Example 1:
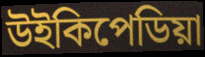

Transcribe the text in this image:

উইকিপেডিয়া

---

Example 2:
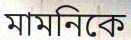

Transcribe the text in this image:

মামনিকে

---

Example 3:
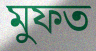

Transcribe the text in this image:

মুফত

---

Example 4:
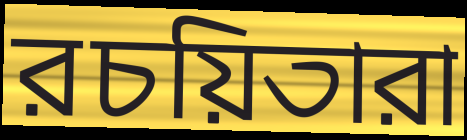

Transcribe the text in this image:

রচয়িতারা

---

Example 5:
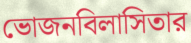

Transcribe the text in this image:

ভোজনবিলাসিতার